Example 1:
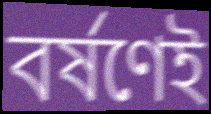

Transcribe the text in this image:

বর্ষণেই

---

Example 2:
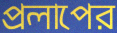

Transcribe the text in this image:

প্রলাপের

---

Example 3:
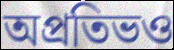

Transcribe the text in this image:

অপ্রতিভও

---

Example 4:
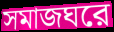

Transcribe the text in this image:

সমাজঘরে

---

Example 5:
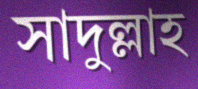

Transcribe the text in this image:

সাদুল্লাহ